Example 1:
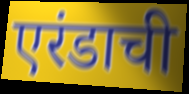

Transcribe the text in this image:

एरंडाची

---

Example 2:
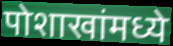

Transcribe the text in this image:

पोशाखांमध्ये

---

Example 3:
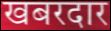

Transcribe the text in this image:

खबरदार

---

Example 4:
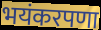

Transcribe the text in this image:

भयंकरपणा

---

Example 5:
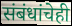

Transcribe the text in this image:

संबंधांचेही